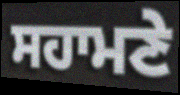
ਸਹਾਮਣੇ